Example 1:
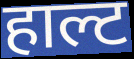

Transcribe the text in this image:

हाल्ट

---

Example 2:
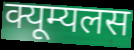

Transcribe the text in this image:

क्यूम्यलस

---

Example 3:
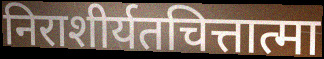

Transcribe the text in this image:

निराशीर्यतचित्तात्मा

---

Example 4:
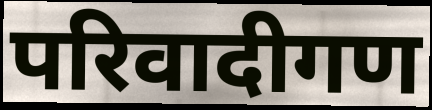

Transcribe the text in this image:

परिवादीगण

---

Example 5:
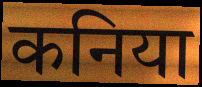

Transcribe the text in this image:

कनिया